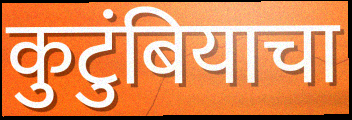
कुटुंबियाचा